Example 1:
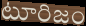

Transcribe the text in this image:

టూరిజం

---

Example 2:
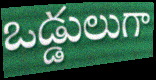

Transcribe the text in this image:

ఒడ్డులుగా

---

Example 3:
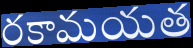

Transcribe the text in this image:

రకామయత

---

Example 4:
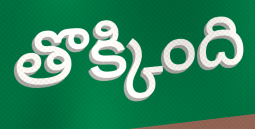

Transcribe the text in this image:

తొక్కింది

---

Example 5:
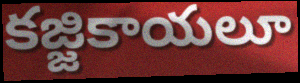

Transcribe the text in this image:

కజ్జికాయలూ